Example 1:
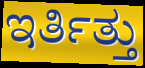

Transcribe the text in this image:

ಇರ್ತಿತ್ತು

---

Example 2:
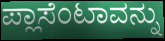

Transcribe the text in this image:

ಪ್ಲಾಸೆಂಟಾವನ್ನು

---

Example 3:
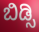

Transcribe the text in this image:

ಬಿಡ್ಸಿ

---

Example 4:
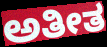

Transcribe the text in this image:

ಅತೀತ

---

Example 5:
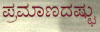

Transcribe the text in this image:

ಪ್ರಮಾಣದಷ್ಟು